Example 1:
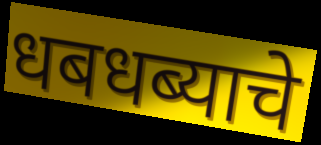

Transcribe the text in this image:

धबधब्याचे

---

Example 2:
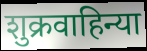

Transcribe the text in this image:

शुक्रवाहिन्या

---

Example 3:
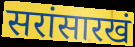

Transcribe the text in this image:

सरांसारखं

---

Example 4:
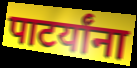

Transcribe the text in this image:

पाटर्यांना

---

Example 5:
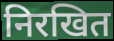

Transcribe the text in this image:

निरखित